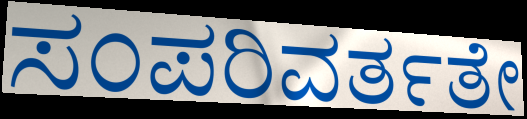
ಸಂಪರಿವರ್ತತೇ